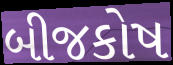
બીજકોષ